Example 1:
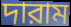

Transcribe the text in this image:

দারাম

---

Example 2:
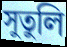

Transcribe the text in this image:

সুতুলি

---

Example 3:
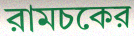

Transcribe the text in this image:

রামচকের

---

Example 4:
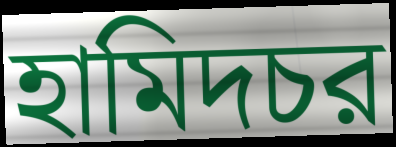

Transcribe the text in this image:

হামিদচর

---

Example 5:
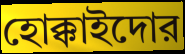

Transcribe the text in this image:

হোক্কাইদোর